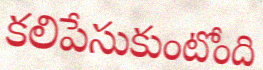
కలిపేసుకుంటోంది